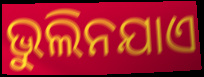
ଭୁଲିନଯାଏ